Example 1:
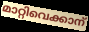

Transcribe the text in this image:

മാറ്റിവെക്കാന്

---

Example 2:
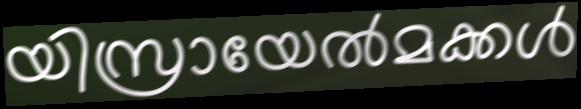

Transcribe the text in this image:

യിസ്രായേൽമക്കൾ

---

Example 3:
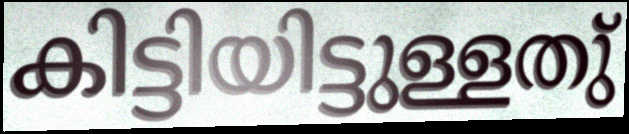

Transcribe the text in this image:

കിട്ടിയിട്ടുള്ളതു്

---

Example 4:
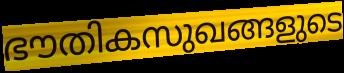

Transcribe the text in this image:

ഭൗതികസുഖങ്ങളുടെ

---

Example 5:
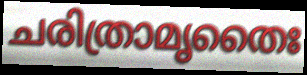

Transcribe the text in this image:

ചരിത്രാമൃതൈഃ